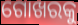
ଗୋଖରକୁ